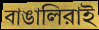
বাঙালিরাই